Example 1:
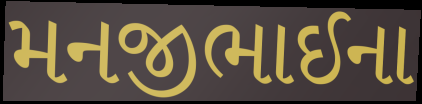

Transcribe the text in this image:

મનજીભાઈના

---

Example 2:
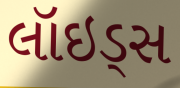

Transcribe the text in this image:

લૉઇડ્સ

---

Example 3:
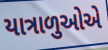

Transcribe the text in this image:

યાત્રાળુઓએ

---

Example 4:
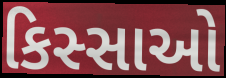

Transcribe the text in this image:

કિસ્સાઓ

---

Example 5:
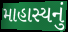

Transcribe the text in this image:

માહાસ્યનું